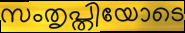
സംതൃപ്തിയോടെ